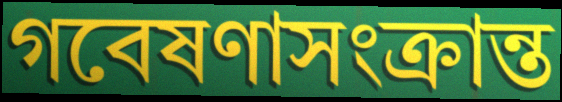
গবেষণাসংক্রান্ত